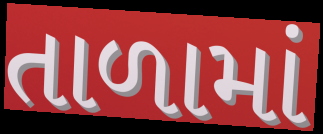
તાળામાં